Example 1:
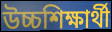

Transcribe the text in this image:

উচ্চশিক্ষার্থী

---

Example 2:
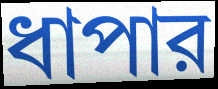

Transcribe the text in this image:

ধাপার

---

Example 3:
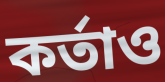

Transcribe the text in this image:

কর্তাও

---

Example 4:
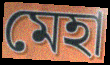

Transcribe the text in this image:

মেহা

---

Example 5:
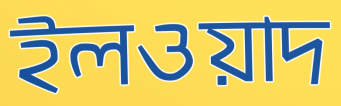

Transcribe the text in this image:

ইলওয়াদ